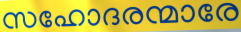
സഹോദരന്മാരേ